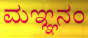
ಮಞ್ಞನಂ